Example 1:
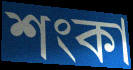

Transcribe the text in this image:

শংকা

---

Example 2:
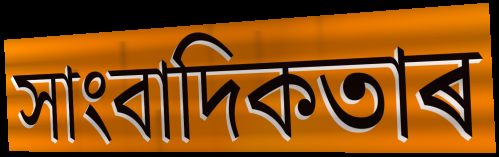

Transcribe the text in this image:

সাংবাদিকতাৰ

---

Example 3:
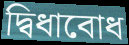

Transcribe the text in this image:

দ্বিধাবোধ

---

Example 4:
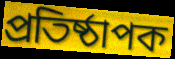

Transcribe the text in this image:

প্ৰতিষ্ঠাপক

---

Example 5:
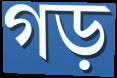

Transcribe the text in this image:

গড়